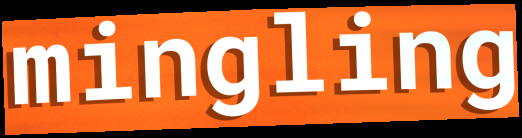
mingling